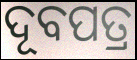
ଦୂବପତ୍ର